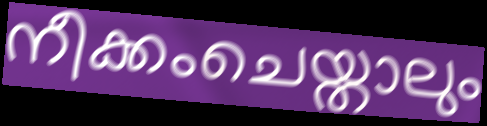
നീക്കംചെയ്താലും